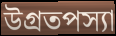
উগ্রতপস্যা